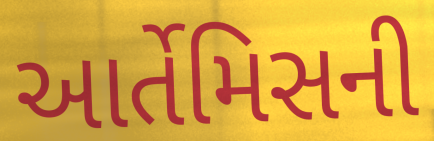
આર્તેમિસની